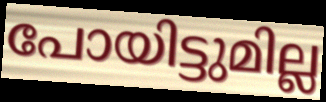
പോയിട്ടുമില്ല